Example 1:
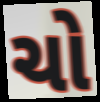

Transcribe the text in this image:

ચો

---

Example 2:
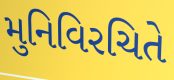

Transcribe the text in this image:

મુનિવિરચિતે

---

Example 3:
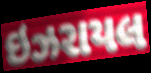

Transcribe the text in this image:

ઇઝરાયલ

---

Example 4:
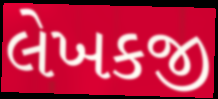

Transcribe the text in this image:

લેખકજી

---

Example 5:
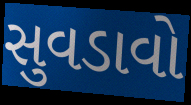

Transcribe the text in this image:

સુવડાવો